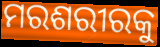
ମରଶରୀରକୁ